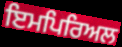
ਇਮਪਿਰਿਅਲ